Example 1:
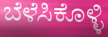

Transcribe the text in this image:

ಬೆಳೆಸಿಕೊಳ್ಳಿ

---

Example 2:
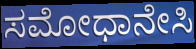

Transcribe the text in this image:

ಸಮೋಧಾನೇಸಿ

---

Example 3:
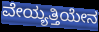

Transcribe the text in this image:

ವೇಯ್ಯತ್ತಿಯೇನ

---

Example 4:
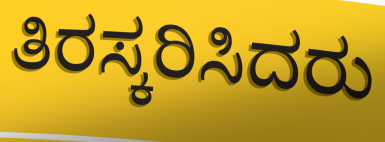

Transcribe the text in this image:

ತಿರಸ್ಕರಿಸಿದರು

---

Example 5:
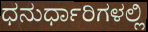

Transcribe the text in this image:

ಧನುರ್ಧಾರಿಗಳಲ್ಲಿ